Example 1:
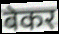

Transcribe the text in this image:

बेकर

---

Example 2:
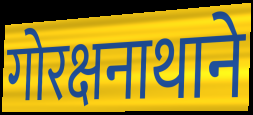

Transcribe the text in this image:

गोरक्षनाथाने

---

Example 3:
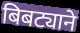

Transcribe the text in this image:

बिबट्याने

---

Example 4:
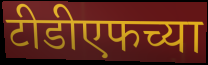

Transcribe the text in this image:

टीडीएफच्या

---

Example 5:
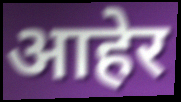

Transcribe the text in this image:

आहेर